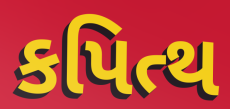
કપિત્થ